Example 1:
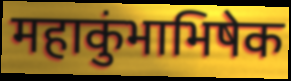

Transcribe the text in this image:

महाकुंभाभिषेक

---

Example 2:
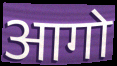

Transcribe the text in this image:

आगो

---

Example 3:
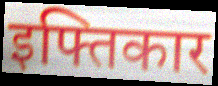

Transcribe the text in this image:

इफ्तिकार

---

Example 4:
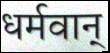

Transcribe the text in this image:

धर्मवान्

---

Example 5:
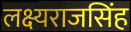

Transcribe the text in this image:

लक्ष्यराजसिंह